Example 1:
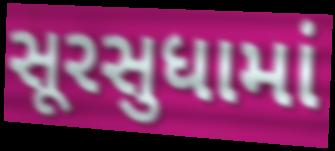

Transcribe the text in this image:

સૂરસુધામાં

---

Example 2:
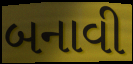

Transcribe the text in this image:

બનાવી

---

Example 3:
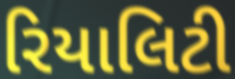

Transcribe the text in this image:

રિયાલિટી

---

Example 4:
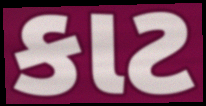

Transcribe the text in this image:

કાટ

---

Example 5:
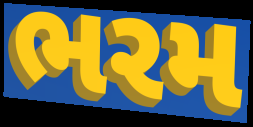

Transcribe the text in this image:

ભરમ